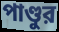
পাণ্ডুর